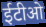
ईटीओ